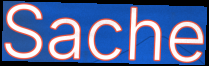
Sache